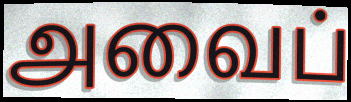
அவைப்